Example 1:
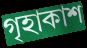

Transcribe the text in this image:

গৃহাকাশ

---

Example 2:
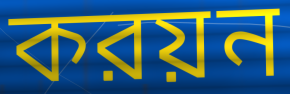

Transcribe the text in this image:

করয়ন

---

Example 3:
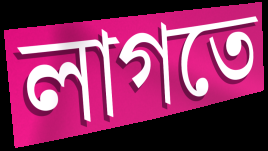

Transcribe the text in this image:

লাগতে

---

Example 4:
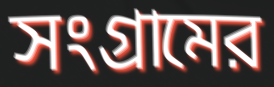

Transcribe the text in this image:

সংগ্রামের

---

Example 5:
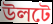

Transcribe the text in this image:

উলটে